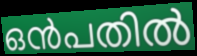
ഒൻപതിൽ